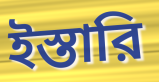
ইস্তারি